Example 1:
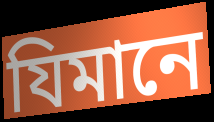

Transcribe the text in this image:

যিমানে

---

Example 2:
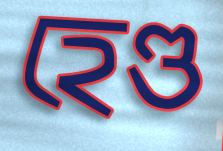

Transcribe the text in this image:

হেণ্ড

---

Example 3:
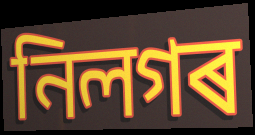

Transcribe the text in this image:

নিলগৰ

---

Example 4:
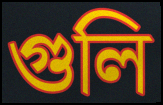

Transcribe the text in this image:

গুলি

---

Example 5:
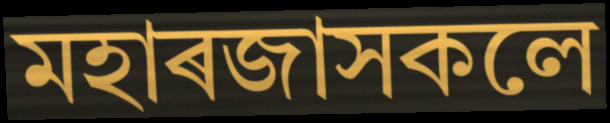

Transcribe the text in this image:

মহাৰজাসকলে